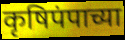
कृषिपंपाच्या